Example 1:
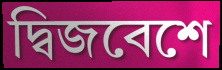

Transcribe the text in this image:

দ্বিজবেশে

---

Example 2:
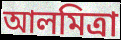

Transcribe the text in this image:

আলমিত্রা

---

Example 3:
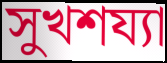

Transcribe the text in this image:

সুখশয্যা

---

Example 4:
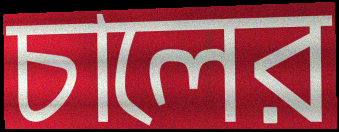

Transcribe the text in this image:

চালের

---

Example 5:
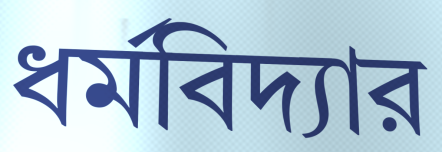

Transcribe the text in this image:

ধর্মবিদ্যার